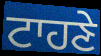
ਟਾਹਣੇ